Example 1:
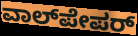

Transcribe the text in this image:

ವಾಲ್‌ಪೇಪರ್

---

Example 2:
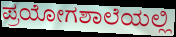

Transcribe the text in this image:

ಪ್ರಯೋಗಶಾಲೆಯಲ್ಲಿ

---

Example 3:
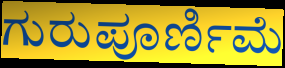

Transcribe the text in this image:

ಗುರುಪೂರ್ಣಿಮೆ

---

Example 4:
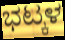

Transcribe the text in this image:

ಭಟ್ಕಳ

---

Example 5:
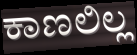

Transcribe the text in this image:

ಕಾಣಲಿಲ್ಲ